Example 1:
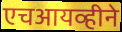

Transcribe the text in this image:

एचआयव्हीने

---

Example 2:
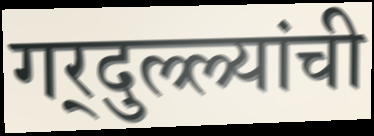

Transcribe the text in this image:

गर्दुल्ल्यांची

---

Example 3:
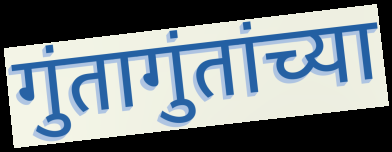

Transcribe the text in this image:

गुंतागुंतांच्या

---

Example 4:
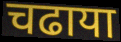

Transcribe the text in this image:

चढाया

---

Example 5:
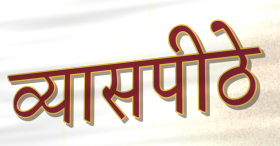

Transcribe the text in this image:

व्यासपीठे